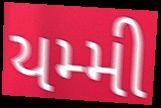
યમ્મી